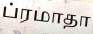
ப்ரமாதா